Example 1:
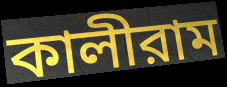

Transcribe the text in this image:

কালীরাম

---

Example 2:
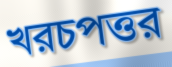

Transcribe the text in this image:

খরচপত্তর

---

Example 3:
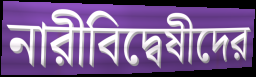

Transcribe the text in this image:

নারীবিদ্বেষীদের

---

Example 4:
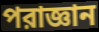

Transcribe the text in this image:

পরাজ্ঞান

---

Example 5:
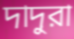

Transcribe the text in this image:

দাদুরা